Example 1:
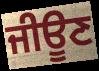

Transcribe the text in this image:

ਜੀਊਣ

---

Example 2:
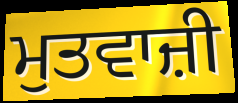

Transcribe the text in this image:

ਮੁਤਵਾਜ਼ੀ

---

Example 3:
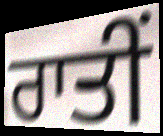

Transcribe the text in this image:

ਰਾਤੀਂ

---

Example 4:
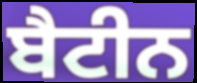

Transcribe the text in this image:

ਬੈਟੀਨ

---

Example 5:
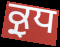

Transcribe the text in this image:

ਕ੍ਰੁਧ